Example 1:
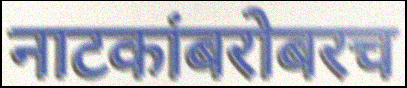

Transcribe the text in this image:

नाटकांबरोबरच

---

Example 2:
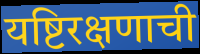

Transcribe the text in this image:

यष्टिरक्षणाची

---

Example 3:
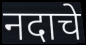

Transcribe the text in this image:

नदाचे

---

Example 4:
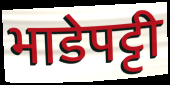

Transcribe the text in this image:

भाडेपट्टी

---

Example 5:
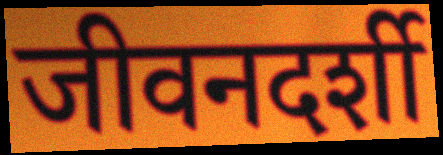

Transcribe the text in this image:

जीवनदर्शी